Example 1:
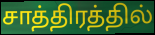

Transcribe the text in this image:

சாத்திரத்தில்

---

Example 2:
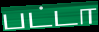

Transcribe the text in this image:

பட்டா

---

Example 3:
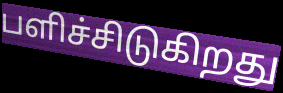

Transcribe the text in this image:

பளிச்சிடுகிறது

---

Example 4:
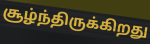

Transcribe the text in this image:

சூழ்ந்திருக்கிறது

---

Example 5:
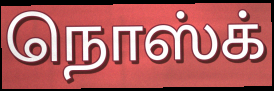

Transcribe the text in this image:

நொஸ்க்